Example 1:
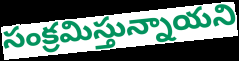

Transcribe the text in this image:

సంక్రమిస్తున్నాయని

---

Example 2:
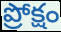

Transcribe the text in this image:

ప్రోక్షం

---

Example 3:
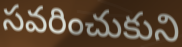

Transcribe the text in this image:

సవరించుకుని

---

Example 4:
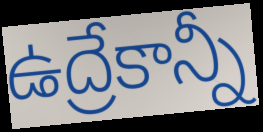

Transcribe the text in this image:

ఉద్రేకాన్నీ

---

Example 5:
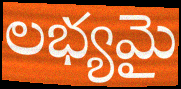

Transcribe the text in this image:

లభ్యమై